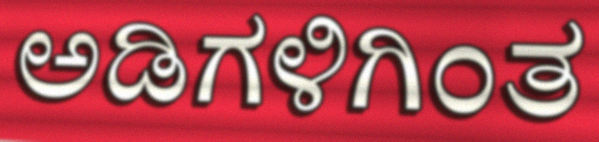
ಅಡಿಗಳಿಗಿಂತ